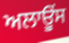
ਅਲਾਊੰਸ